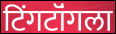
टिंगटॉंगला